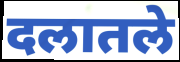
दलातले